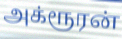
அக்ரூரன்